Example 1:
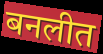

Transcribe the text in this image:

बनलीत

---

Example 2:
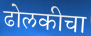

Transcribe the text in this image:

ढोलकीचा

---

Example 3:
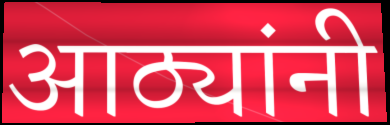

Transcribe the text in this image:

आठ्यांनी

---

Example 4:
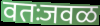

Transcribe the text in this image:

वतःजवळ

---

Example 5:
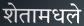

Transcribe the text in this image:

शेतामधले